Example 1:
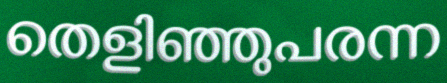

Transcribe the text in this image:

തെളിഞ്ഞുപരന്ന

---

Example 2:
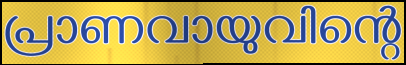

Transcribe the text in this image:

പ്രാണവായുവിന്റെ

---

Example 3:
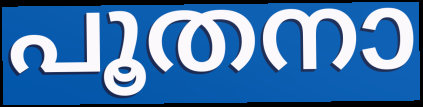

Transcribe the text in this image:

പൂതനാ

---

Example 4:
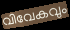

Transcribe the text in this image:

വിവേകവും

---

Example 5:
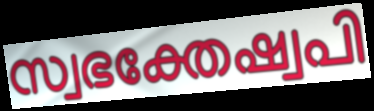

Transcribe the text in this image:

സ്വഭക്തേഷ്വപി